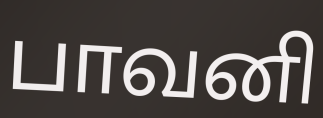
பாவனி